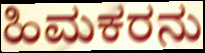
ಹಿಮಕರನು